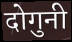
दोगुनी